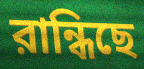
রান্ধিছে